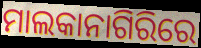
ମାଲକାନାଗିରିରେ